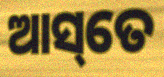
ଆସ୍‌ତେ